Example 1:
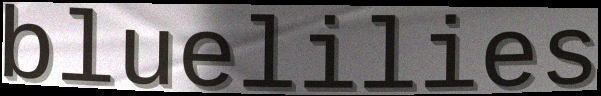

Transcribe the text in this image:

bluelilies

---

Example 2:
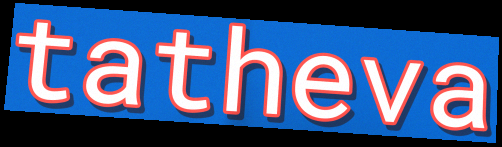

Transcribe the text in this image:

tatheva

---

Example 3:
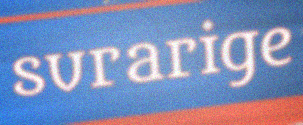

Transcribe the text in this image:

surarige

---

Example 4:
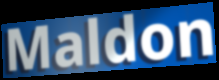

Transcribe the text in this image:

Maldon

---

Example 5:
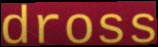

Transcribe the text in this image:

dross